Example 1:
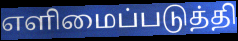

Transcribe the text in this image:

எளிமைப்படுத்தி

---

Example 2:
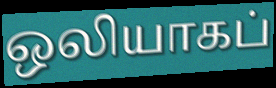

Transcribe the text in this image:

ஒலியாகப்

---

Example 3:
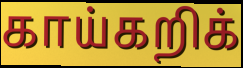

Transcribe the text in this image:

காய்கறிக்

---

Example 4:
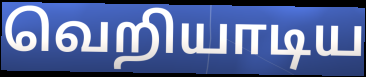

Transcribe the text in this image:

வெறியாடிய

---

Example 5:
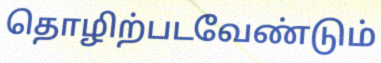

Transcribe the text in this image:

தொழிற்படவேண்டும்